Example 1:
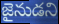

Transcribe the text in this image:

జైనుడని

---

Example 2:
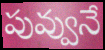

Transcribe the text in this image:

పువ్వునే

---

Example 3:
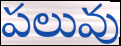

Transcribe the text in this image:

పలువు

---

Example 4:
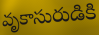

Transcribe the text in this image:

వృకాసురుడికి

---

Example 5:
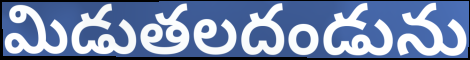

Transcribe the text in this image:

మిడుతలదండును